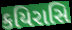
કયિરાસિ